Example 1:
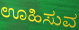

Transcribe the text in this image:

ಊಹಿಸುವ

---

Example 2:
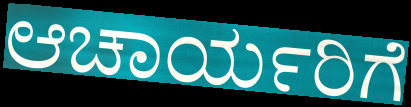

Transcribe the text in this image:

ಆಚಾರ್ಯರಿಗೆ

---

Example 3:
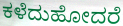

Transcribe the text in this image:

ಕಳೆದುಹೋದರೆ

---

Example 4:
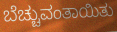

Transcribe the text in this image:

ಬೆಚ್ಚುವಂತಾಯಿತು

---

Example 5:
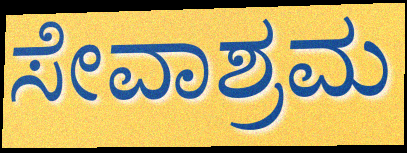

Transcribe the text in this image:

ಸೇವಾಶ್ರಮ